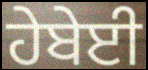
ਹੇਬੇਈ